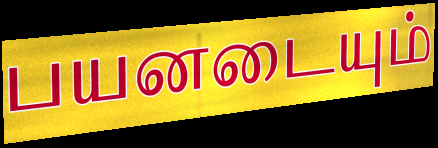
பயனடையும்